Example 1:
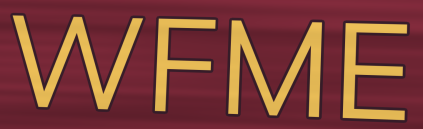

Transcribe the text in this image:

WFME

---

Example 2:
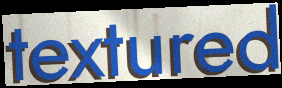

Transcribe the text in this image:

textured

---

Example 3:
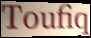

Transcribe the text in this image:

Toufiq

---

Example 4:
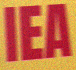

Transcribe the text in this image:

IEA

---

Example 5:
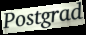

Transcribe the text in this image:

Postgrad